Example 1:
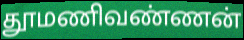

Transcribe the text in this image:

தூமணிவண்ணன்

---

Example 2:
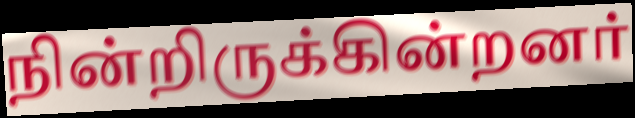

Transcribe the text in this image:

நின்றிருக்கின்றனர்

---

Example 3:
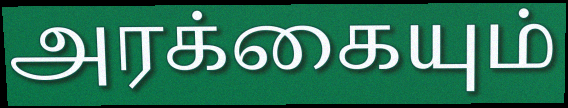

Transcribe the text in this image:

அரக்கையும்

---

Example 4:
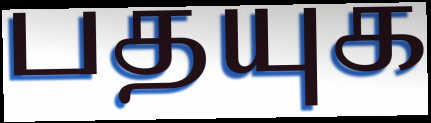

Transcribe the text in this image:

பதயுக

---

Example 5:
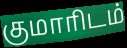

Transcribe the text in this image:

குமாரிடம்